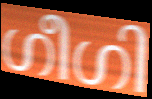
ഗീഗി